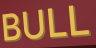
BULL